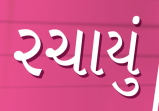
રચાયું